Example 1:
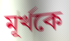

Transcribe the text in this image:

মূর্খকে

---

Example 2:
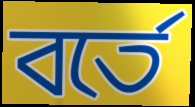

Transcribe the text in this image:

বর্তে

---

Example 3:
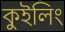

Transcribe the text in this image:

কুইলিং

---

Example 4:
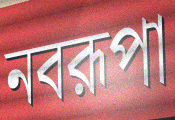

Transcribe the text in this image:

নবরূপা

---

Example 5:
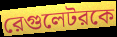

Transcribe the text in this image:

রেগুলেটরকে